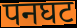
पनघट